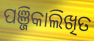
ପଞ୍ଜିକାଲିଖିତ